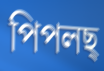
পিপলছ্